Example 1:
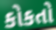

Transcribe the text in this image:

કોકતો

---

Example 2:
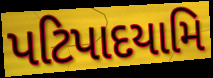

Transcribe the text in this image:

પટિપાદયામિ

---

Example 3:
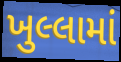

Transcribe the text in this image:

ખુલ્લામાં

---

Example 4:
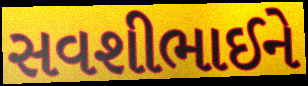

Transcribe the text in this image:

સવશીભાઈને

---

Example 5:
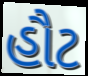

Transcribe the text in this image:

હૌટ